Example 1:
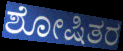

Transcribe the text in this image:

ಶೋಷಿತರ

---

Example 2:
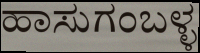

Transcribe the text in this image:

ಹಾಸುಗಂಬಳ್ಳ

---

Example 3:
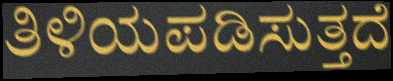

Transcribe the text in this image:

ತಿಳಿಯಪಡಿಸುತ್ತದೆ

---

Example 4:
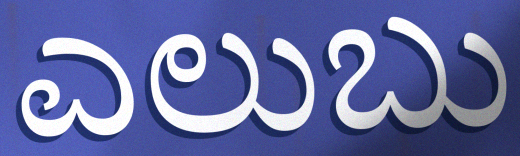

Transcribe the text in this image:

ಎಲುಬು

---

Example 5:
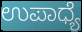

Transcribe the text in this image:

ಉಪಾಧ್ಯೆ